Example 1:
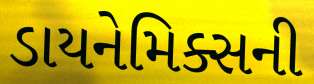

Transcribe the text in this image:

ડાયનેમિક્સની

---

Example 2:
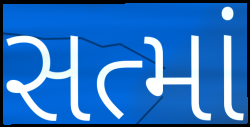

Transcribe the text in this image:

સત્માં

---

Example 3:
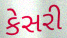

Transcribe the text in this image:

કેસરી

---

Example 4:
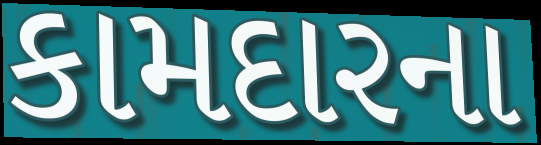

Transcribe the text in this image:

કામદારના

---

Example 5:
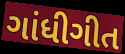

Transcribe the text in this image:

ગાંધીગીત